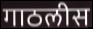
गाठलीस